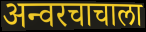
अन्वरचाचाला